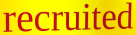
recruited